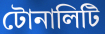
টোনালিটি